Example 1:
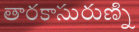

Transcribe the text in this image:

తారకాసురుణ్ని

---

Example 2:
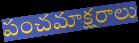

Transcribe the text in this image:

పంచమాక్షరాలు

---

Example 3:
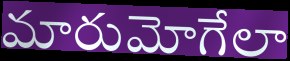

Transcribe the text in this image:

మారుమోగేలా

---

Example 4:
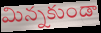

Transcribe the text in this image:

మిన్నకుండా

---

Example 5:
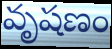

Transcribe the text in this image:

వృషణం